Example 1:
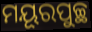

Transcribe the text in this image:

ମୟୂରପୁଚ୍ଛ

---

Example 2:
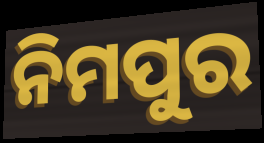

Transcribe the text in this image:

ନିମପୁର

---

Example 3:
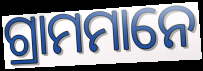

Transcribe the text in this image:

ଗ୍ରାମମାନେ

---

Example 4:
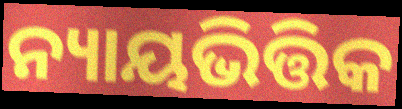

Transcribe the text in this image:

ନ୍ୟାୟଭିତ୍ତିକ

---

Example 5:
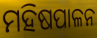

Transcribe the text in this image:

ମହିଷପାଳନ